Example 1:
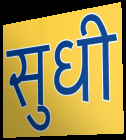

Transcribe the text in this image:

सुधी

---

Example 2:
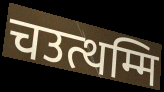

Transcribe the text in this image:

चउत्थम्मि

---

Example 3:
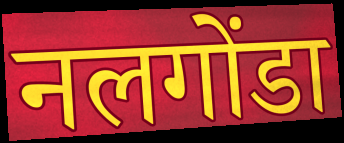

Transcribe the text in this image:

नलगोंडा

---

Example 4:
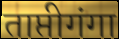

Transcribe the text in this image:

ताप्तीगंगा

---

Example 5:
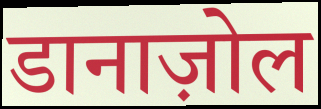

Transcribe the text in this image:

डानाज़ोल